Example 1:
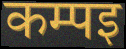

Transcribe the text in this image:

कम्पइ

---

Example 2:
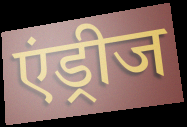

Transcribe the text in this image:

एंड्रीज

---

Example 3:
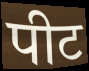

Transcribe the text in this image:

पीट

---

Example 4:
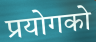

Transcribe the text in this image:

प्रयोगको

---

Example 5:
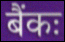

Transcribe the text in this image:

बैंकः